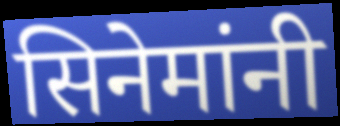
सिनेमांनी